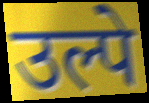
उल्पे